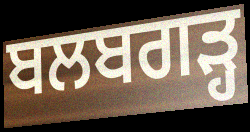
ਬਲਬਗੜ੍ਹ